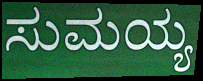
ಸುಮಯ್ಯ